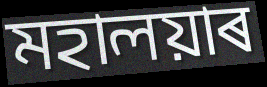
মহালয়াৰ